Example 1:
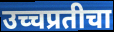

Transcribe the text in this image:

उच्चप्रतीचा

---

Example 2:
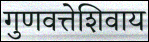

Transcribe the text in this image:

गुणवत्तेशिवाय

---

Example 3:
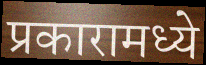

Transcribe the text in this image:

प्रकारामध्ये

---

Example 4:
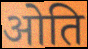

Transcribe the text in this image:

ओति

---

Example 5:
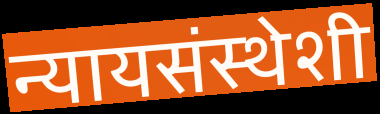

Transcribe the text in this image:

न्यायसंस्थेशी